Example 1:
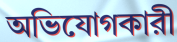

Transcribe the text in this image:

অভিযোগকারী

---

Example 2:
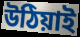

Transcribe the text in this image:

উঠিয়াই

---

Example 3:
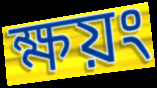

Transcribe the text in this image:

ক্ষয়ং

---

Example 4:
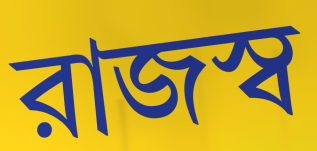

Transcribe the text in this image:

রাজস্ব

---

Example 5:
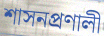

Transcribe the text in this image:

শাসনপ্রণালী